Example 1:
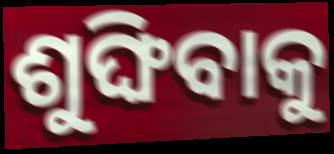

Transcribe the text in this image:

ଶୁଙ୍ଘିବାକୁ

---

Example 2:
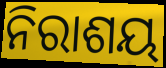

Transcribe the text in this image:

ନିରାଶୟ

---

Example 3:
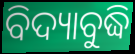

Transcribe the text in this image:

ବିଦ୍ୟାବୁଦ୍ଧି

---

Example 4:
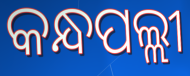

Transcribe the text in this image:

କନ୍ଧପଲ୍ଲୀ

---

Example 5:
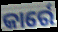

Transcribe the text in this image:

କାର୍ରେ